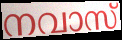
നവാസ്